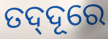
ତଦ୍‍ଦୂରେ